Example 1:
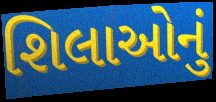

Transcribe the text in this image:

શિલાઓનું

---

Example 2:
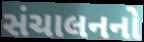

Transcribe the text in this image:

સંચાલનનો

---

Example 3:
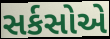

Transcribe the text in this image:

સર્કસોએ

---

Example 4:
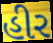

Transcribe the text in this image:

હીર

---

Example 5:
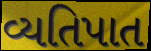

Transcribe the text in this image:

વ્યતિપાત